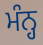
ਮੰਨ੍ਹ